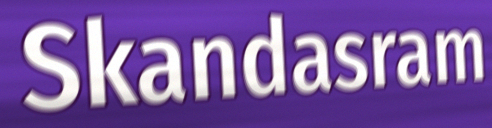
Skandasram